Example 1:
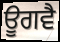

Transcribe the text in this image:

ਊਗਵੈ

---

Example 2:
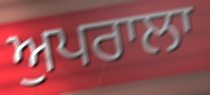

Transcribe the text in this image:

ਅੁਪਰਾਲਾ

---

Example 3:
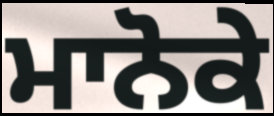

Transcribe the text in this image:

ਮਾਨੋਕੇ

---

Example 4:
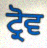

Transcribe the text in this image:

ਟ੍ਰੋਵ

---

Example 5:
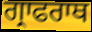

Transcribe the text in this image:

ਗ੍ਰਾਫਰਾਥ